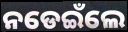
ନଡେଇଁଲେ